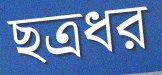
ছত্রধর